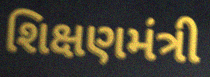
શિક્ષણમંત્રી